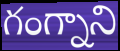
గంగ్నాని